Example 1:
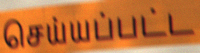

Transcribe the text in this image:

செய்யப்பட்ட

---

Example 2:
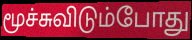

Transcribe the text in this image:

மூச்சுவிடும்போது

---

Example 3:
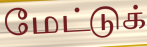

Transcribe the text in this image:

மேட்டுக்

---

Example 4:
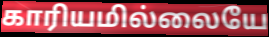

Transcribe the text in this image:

காரியமில்லையே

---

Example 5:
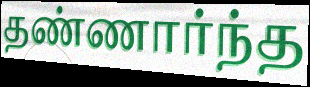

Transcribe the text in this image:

தண்ணார்ந்த